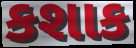
કશાક